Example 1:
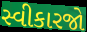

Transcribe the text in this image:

સ્વીકારજો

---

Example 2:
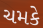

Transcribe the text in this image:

ચમકે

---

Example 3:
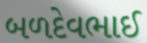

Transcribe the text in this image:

બળદેવભાઈ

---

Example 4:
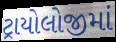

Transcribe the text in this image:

ટ્રાયોલોજીમાં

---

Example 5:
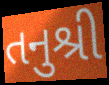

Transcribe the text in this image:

તનુશ્રી